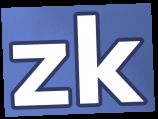
zk